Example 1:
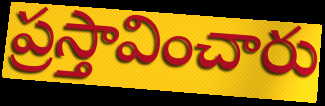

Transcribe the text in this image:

ప్రస్తావించారు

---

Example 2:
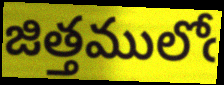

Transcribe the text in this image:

జిత్తములోఁ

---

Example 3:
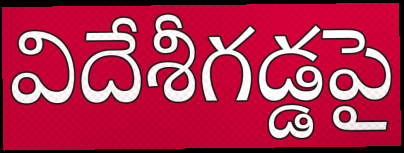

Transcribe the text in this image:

విదేశీగడ్డపై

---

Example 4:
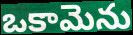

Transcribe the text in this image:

ఒకామెను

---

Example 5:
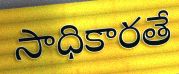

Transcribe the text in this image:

సాధికారతే